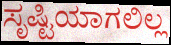
ಸೃಷ್ಟಿಯಾಗಲಿಲ್ಲ